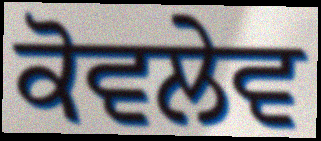
ਕੋਵਲੇਵ